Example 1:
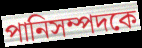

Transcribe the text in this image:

পানিসম্পদকে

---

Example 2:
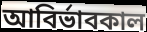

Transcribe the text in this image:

আবির্ভাবকাল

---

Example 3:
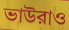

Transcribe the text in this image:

ভাউরাও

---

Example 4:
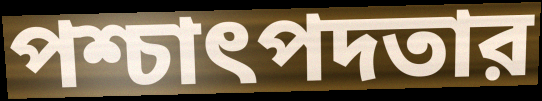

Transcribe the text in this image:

পশ্চাৎপদতার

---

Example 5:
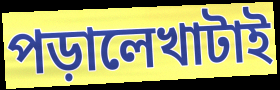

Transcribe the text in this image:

পড়ালেখাটাই